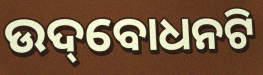
ଉଦ୍‌ବୋଧନଟି